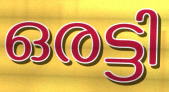
ഒരട്ടി